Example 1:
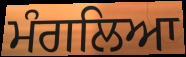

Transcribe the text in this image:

ਮੰਗਲਿਆ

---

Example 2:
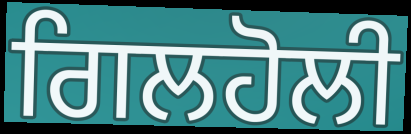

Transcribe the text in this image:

ਗਿਲਹੋਲੀ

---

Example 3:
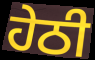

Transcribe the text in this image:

ਹੇਠੀ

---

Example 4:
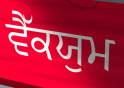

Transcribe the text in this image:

ਵੈੱਕਯੁਮ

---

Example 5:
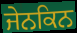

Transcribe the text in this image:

ਜੇਨਕਿਨ